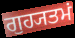
ਗੁਹ੍ਯਤਮਂ